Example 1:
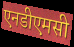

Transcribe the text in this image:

एनडीएमसी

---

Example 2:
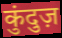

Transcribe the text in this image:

कुंदुज़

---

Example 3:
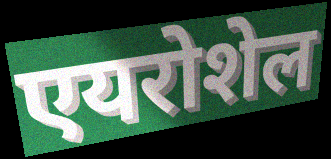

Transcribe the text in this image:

एयरोशेल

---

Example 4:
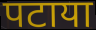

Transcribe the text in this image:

पटाया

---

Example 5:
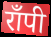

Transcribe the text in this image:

राँपी